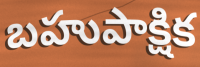
బహుపాక్షిక